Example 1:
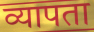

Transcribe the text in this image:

व्यापता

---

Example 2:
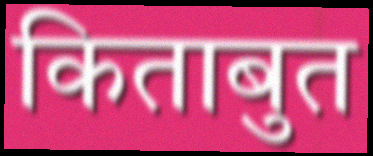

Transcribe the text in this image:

किताबुत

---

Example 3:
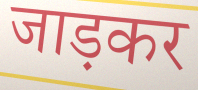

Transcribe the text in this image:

जाड़कर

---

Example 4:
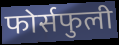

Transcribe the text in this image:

फोर्सफुली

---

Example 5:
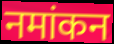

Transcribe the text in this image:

नमांकन